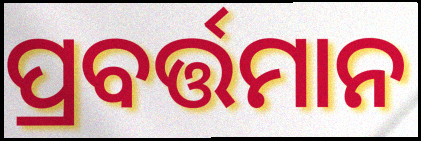
ପ୍ରବର୍ତ୍ତମାନ